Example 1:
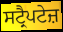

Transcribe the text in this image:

ਸਟ੍ਰੈਪਟੇਜ਼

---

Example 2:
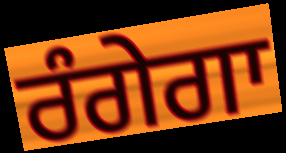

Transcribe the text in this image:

ਰੰਗੇਗਾ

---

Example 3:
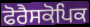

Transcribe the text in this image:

ਫੋਰੈਸਕੋਪਿਕ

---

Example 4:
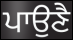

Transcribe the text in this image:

ਪਾਉਣੈ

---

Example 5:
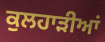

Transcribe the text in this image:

ਕੁਲਹਾੜੀਆਂ